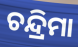
ଚନ୍ଦ୍ରିମା